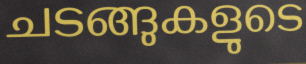
ചടങ്ങുകളുടെ